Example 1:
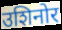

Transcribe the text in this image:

उशिनोर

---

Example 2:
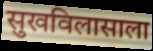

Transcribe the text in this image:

सुखविलासाला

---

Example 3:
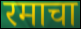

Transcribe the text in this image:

रमाचा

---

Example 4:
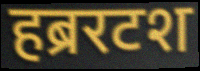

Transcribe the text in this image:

हब्ररटश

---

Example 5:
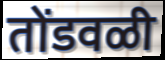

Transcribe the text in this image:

तोंडवळी